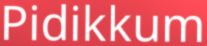
Pidikkum